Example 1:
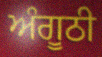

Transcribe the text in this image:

ਅੰਗੂਠੀ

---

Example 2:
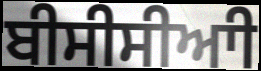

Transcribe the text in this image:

ਬੀਸੀਸੀਆੀ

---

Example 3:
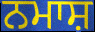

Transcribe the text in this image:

ਨਮਾਸ਼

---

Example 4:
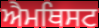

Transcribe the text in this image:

ਐਮਥਿਸਟ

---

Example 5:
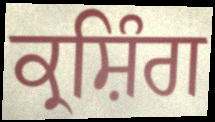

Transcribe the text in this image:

ਕ੍ਰਸ਼ਿੰਗ